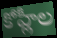
కోహ్లీల